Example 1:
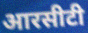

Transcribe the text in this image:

आरसीटी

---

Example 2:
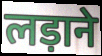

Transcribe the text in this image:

लड़ाने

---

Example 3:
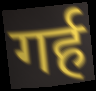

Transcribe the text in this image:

गर्ह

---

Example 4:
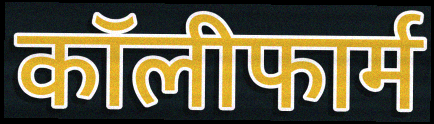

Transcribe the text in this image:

कॉलीफार्म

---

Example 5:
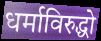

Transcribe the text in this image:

धर्माविरुद्धो